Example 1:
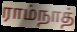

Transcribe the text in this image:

ராம்நாத்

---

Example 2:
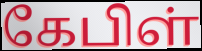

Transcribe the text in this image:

கேபிள்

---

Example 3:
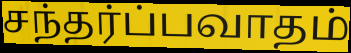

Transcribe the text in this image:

சந்தர்ப்பவாதம்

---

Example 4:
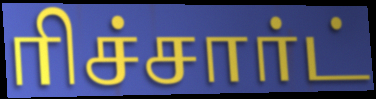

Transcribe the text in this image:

ரிச்சார்ட்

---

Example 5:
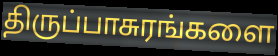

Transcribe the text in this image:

திருப்பாசுரங்களை